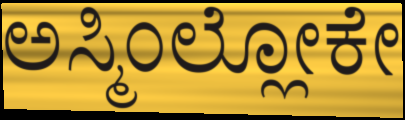
ಅಸ್ಮಿಂಲ್ಲೋಕೇ